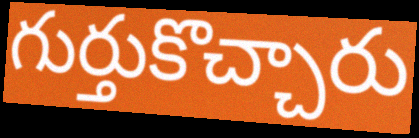
గుర్తుకొచ్చారు